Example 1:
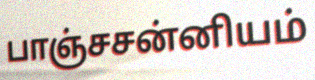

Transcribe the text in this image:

பாஞ்சசன்னியம்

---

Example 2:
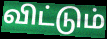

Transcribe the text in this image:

விட்டும்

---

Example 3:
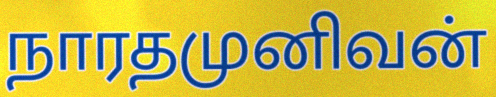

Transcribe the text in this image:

நாரதமுனிவன்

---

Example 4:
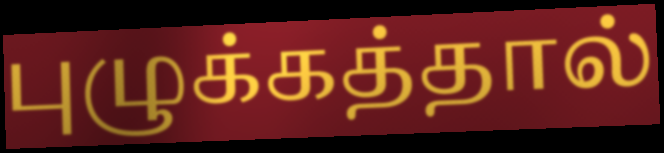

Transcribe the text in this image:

புழுக்கத்தால்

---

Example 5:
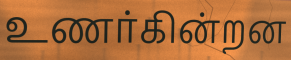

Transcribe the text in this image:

உணர்கின்றன